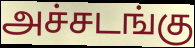
அச்சடங்கு